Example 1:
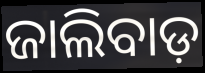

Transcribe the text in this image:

ଜାଲିବାଡ଼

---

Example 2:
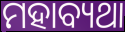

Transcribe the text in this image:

ମହାବ୍ୟଥା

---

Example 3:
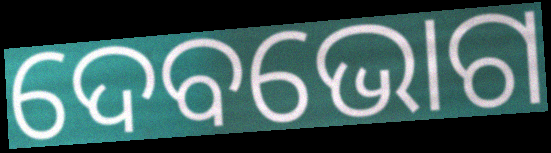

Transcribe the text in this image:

ଦେବଭୋଗ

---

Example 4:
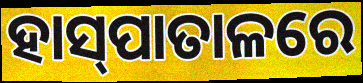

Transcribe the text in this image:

ହାସ୍‍ପାତାଳରେ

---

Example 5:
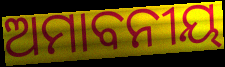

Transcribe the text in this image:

ଅମାବନୀୟ